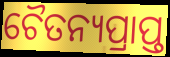
ଚୈତନ୍ୟପ୍ରାପ୍ତ